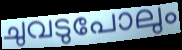
ചുവടുപോലും